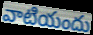
వాటియందు